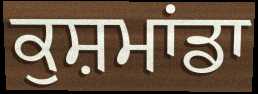
ਕੁਸ਼ਮਾਂਡਾ